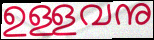
ഉള്ളവനു